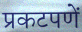
प्रकटपणें